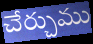
చేర్చుము